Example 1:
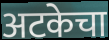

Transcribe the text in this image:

अटकेचा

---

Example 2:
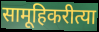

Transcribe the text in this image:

सामूहिकरीत्या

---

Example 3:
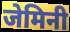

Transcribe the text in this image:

जेमिनी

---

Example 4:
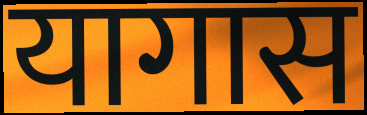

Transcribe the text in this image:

यागास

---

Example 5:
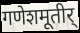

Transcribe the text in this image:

गणेशमूतीर्